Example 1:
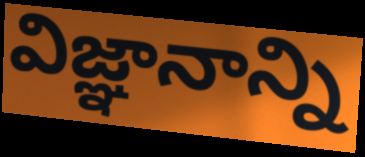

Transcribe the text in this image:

విజ్ఞానాన్ని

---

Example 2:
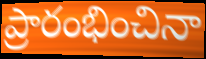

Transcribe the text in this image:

ప్రారంభించినా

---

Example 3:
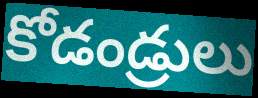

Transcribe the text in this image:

కోడండ్రులు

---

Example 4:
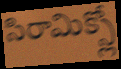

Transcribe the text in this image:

సిరామిక్స్లో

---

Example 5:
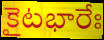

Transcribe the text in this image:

కైటభారేః